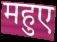
महुए